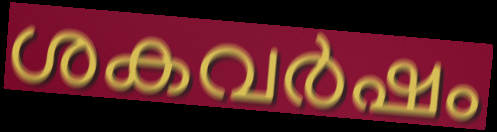
ശകവർഷം